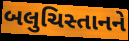
બલુચિસ્તાનને